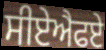
ਸੀਏਐਫਏ